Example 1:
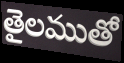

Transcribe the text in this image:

తైలముతో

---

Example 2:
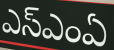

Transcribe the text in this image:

ఎస్ఎంఏ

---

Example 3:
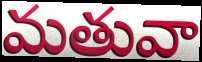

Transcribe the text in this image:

మతువా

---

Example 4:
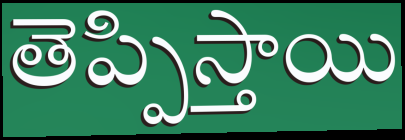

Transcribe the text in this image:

తెప్పిస్తాయి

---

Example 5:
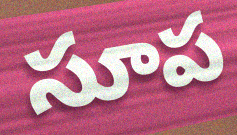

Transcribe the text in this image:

సూప